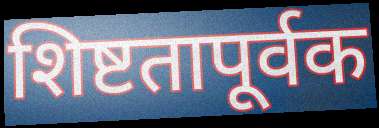
शिष्टतापूर्वक